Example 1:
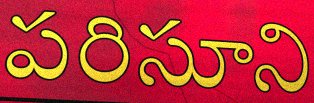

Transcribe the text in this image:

పరిసూని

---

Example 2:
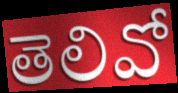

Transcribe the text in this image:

తెలివో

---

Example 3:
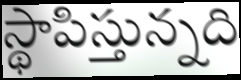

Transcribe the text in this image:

స్థాపిస్తున్నది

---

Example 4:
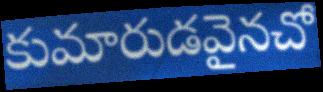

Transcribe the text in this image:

కుమారుడవైనచో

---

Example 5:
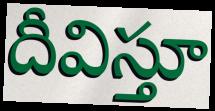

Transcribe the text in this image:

దీవిస్తూ